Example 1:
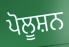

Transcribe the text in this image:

ਪੋਲੂਸ਼ਨ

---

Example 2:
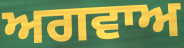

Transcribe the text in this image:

ਅਗਵਾਅ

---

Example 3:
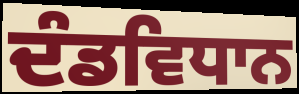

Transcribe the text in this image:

ਦੰਡਵਿਧਾਨ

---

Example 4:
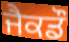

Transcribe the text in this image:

ਜੈਕਡੌ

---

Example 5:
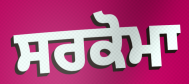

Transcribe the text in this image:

ਸਰਕੋਮਾ